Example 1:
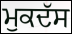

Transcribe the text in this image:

ਮੁਕਦੱਸ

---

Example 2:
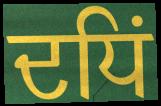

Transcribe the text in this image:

ਦਧਿਂ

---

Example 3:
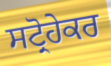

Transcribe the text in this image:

ਸਟ੍ਰੋਹੇਕਰ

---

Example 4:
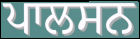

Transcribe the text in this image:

ਪਾਲਸਨ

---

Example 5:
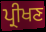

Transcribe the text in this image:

ਪ੍ਰੀਖਣ